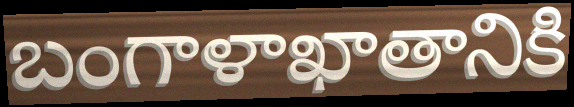
బంగాళాఖాతానికి